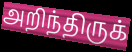
அறிந்திருக்